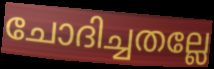
ചോദിച്ചതല്ലേ